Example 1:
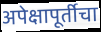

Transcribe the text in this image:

अपेक्षापूर्तीचा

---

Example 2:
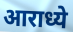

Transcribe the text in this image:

आराध्ये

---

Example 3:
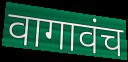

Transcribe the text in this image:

वागावंच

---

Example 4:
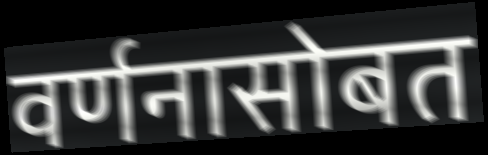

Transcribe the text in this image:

वर्णनासोबत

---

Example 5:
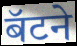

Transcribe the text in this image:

बॅटने